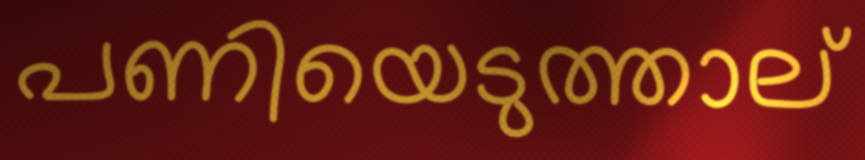
പണിയെടുത്താല്